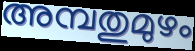
അമ്പതുമുഴം